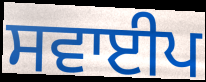
ਸਵਾਈਪ